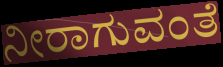
ನೀರಾಗುವಂತೆ